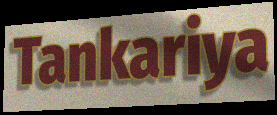
Tankariya